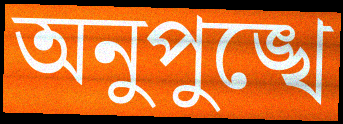
অনুপুঙ্খে